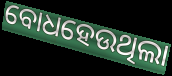
ବୋଧହେଉଥିଲା